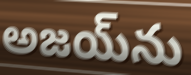
అజయ్‌ను